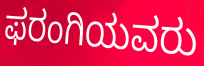
ಫರಂಗಿಯವರು